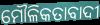
ମୌଳିକତାବାଦୀ